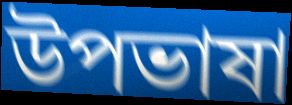
উপভাষা